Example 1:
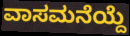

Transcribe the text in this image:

ವಾಸಮನೆಯ್ದೆ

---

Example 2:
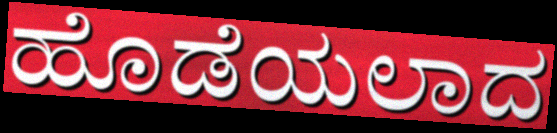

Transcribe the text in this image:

ಹೊಡೆಯಲಾದ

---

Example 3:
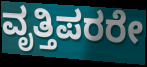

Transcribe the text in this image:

ವೃತ್ತಿಪರರೇ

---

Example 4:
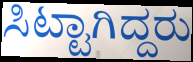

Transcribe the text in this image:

ಸಿಟ್ಟಾಗಿದ್ದರು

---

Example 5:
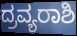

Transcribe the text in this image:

ದ್ರವ್ಯರಾಶಿ